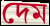
দেম